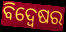
ବିଦ୍ବେଷର